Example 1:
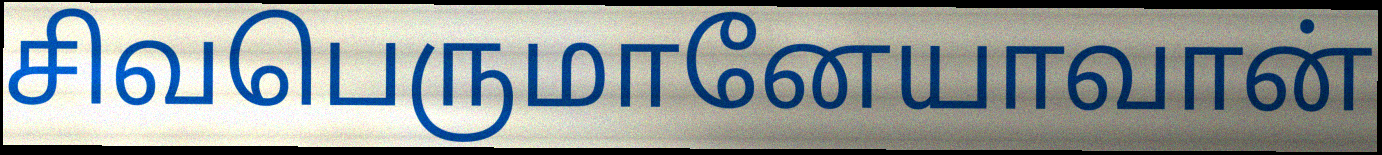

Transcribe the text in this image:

சிவபெருமானேயாவான்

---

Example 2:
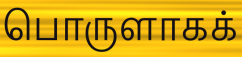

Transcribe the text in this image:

பொருளாகக்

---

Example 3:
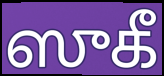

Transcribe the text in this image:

ஸுகீ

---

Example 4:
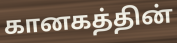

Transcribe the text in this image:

கானகத்தின்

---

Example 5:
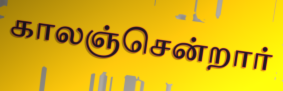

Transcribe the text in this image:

காலஞ்சென்றார்